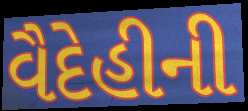
વૈદેહીની